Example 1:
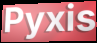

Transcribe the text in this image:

Pyxis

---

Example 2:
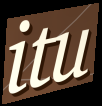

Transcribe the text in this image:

itu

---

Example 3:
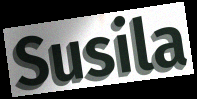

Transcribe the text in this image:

Susila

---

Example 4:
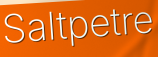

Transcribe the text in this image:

Saltpetre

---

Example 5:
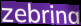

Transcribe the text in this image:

zebrina